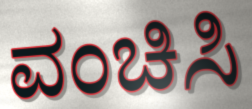
ವಂಚಿಸಿ